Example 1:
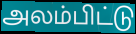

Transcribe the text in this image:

அலம்பிட்டு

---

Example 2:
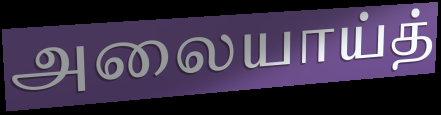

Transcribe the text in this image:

அலையாய்த்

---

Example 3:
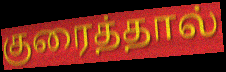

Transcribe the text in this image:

குரைத்தால்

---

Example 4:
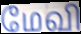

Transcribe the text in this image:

மேவி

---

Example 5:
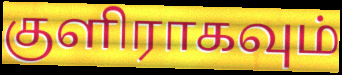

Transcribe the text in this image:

குளிராகவும்